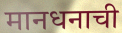
मानधनाची